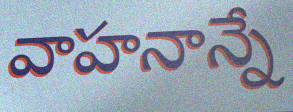
వాహనాన్నే